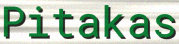
Pitakas